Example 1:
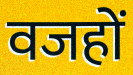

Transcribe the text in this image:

वजहों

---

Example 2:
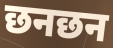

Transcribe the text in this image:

छनछन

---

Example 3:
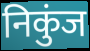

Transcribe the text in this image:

निकुंज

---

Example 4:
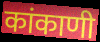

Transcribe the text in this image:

कांकाणी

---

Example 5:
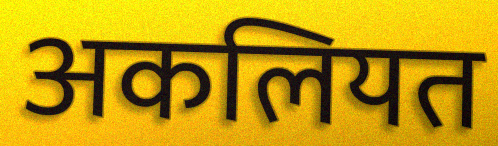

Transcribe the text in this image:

अकलियत